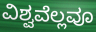
ವಿಶ್ವವೆಲ್ಲವೂ